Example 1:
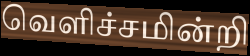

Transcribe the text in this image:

வெளிச்சமின்றி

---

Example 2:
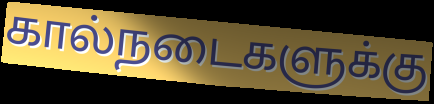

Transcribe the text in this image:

கால்நடைகளுக்கு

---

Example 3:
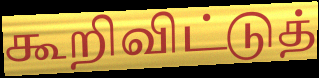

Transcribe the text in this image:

கூறிவிட்டுத்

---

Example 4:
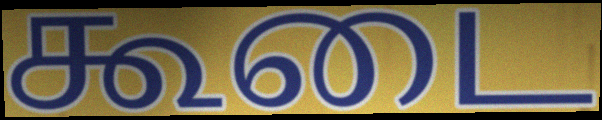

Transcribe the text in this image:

கூடை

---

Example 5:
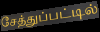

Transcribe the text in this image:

சேத்துப்பட்டில்